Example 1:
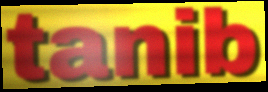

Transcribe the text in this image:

tanib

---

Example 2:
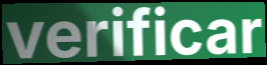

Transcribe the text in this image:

verificar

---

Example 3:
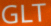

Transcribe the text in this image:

GLT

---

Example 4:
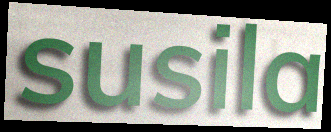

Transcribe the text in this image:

susila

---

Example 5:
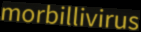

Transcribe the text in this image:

morbillivirus